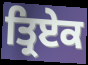
ਤ੍ਰਿਏਕ